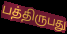
பத்திருபது